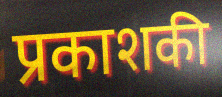
प्रकाशकी